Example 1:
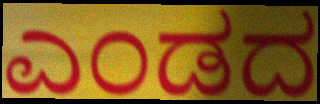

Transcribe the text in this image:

ಎಂಡದ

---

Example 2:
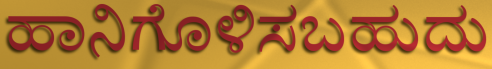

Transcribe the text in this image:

ಹಾನಿಗೊಳಿಸಬಹುದು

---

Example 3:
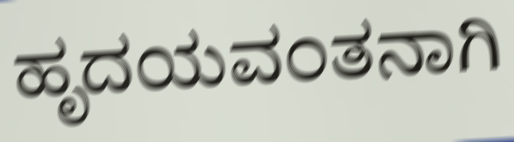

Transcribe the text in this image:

ಹೃದಯವಂತನಾಗಿ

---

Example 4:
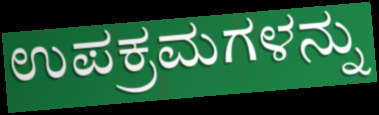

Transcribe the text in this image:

ಉಪಕ್ರಮಗಳನ್ನು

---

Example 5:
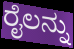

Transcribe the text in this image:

ರೈಲನ್ನು